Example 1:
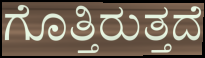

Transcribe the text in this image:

ಗೊತ್ತಿರುತ್ತದೆ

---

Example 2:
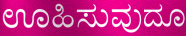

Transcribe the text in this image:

ಊಹಿಸುವುದೂ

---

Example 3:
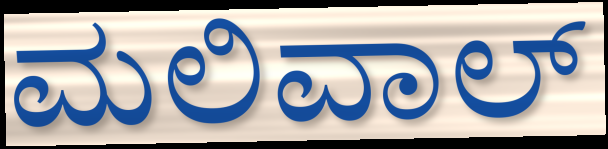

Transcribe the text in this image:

ಮಲಿವಾಲ್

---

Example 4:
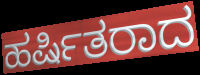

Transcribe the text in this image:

ಹರ್ಷಿತರಾದ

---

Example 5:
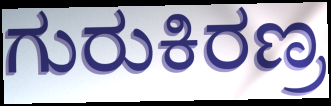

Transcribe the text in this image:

ಗುರುಕಿರಣ್ರ